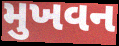
મુખવન